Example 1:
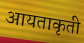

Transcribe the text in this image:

आयताकृती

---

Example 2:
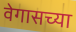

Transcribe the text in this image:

वेगासच्या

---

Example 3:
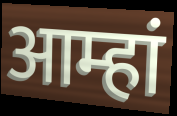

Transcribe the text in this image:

आम्हां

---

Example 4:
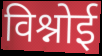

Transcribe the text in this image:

विश्नोई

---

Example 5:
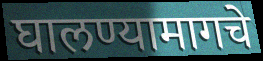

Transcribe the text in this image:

घालण्यामागचे